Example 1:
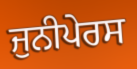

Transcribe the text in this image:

ਜੁਨੀਪੇਰਸ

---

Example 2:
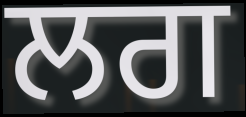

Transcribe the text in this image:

ਲਗ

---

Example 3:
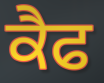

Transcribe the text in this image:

ਕੈਫ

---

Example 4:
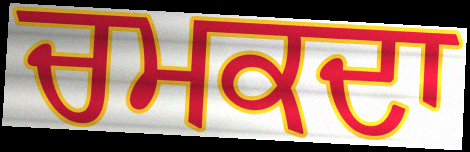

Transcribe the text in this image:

ਚਮਕਦਾ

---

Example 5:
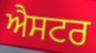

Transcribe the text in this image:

ਐਸਟਰ